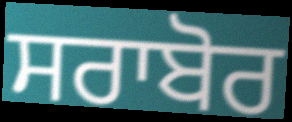
ਸਰਾਬੋਰ